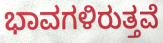
ಭಾವಗಳಿರುತ್ತವೆ